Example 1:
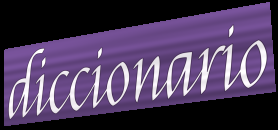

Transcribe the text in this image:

diccionario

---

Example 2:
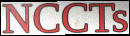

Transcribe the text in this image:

NCCTs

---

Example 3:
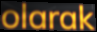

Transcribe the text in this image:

olarak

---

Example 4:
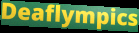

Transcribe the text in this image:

Deaflympics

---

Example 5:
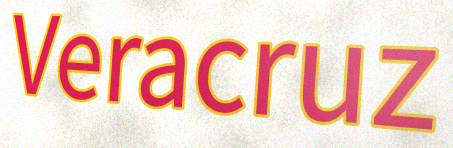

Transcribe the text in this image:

Veracruz